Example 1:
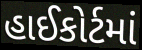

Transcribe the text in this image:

હાઈકોર્ટમાં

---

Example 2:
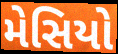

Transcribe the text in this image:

મેસિયો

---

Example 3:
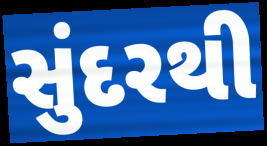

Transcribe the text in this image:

સુંદરથી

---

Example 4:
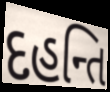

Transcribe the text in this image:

દહન્તિ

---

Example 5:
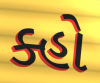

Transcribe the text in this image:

ક્હો